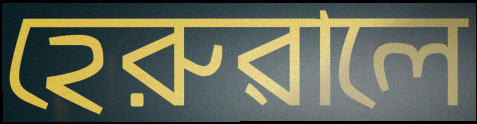
হেৰুৱালে